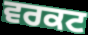
ਵਰਕਟ